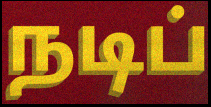
நடிப்